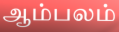
ஆம்பலம்